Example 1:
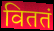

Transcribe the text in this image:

विततं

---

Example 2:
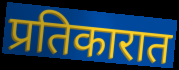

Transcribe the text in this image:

प्रतिकारात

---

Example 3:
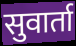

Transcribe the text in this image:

सुवार्ता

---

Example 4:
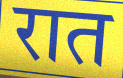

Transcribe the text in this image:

रात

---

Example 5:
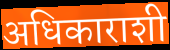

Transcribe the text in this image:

अधिकाराशी